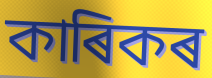
কাৰিকৰ